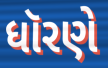
ધૉરણે